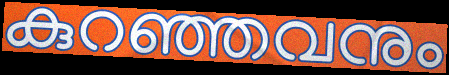
കുറഞ്ഞവനും